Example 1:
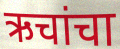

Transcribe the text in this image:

ऋचांचा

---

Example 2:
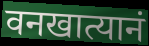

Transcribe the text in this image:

वनखात्यानं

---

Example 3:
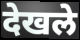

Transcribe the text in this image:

देखले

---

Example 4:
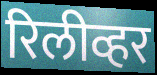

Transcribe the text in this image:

रिलीव्हर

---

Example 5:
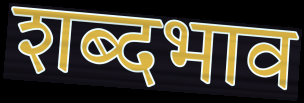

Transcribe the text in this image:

शब्दभाव